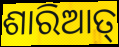
ଶାରିଆତ୍